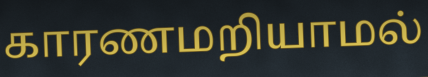
காரணமறியாமல்